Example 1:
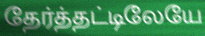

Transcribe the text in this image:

தேர்த்தட்டிலேயே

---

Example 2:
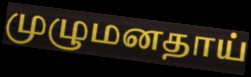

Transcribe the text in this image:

முழுமனதாய்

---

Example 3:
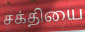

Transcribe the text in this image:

சக்தியை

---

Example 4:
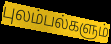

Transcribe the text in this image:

புலம்பல்களும்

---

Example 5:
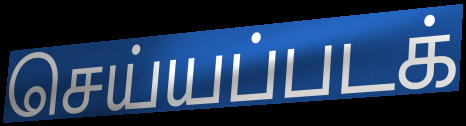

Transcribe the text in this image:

செய்யப்படக்